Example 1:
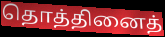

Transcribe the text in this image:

தொத்தினைத்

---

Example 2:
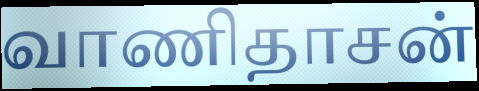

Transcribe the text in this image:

வாணிதாசன்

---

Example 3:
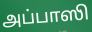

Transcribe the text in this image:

அப்பாஸி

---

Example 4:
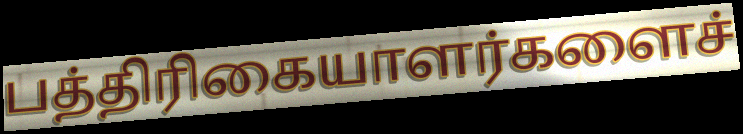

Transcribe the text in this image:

பத்திரிகையாளர்களைச்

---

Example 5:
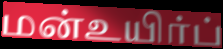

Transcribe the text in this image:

மன்உயிர்ப்